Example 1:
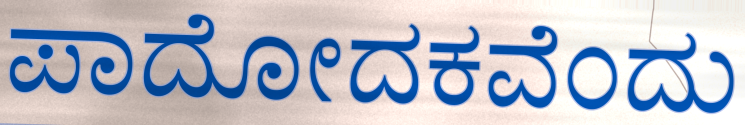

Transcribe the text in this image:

ಪಾದೋದಕವೆಂದು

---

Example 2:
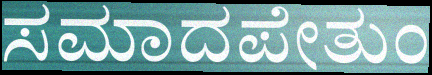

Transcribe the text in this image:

ಸಮಾದಪೇತುಂ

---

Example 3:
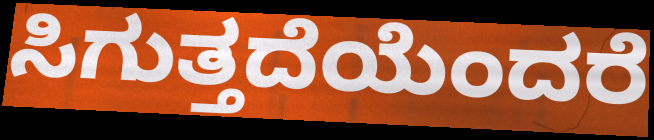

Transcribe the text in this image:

ಸಿಗುತ್ತದೆಯೆಂದರೆ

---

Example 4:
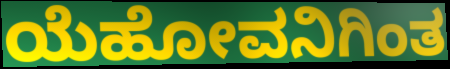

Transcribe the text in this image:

ಯೆಹೋವನಿಗಿಂತ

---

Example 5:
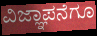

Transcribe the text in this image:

ವಿಜ್ಞಾಪನೆಗೂ